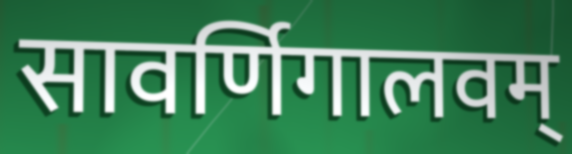
सावर्णिगालवम्